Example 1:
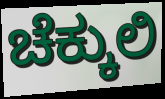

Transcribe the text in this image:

ಚೆಕ್ಕುಲಿ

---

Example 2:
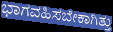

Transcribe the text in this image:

ಭಾಗವಹಿಸಬೇಕಾಗಿತ್ತು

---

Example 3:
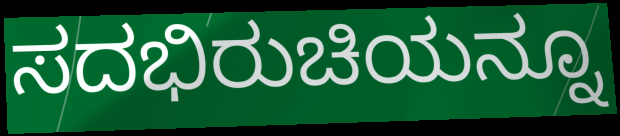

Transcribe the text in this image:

ಸದಭಿರುಚಿಯನ್ನೂ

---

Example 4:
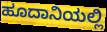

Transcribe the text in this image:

ಹೂದಾನಿಯಲ್ಲಿ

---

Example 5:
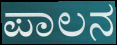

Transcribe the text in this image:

ಪಾಲನ